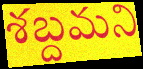
శబ్దమని